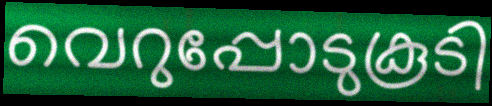
വെറുപ്പോടുകൂടി